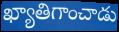
ఖ్యాతిగాంచాడు